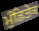
ਮੁੰਡਿਤੇਕ